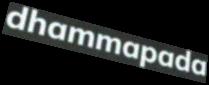
dhammapada